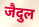
जैदुल